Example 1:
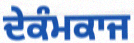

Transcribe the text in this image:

ਦੇਕੰਮਕਾਜ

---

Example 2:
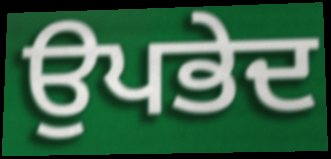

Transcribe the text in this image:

ਉਪਭੇਦ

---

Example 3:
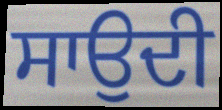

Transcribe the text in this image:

ਸਾਉਦੀ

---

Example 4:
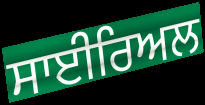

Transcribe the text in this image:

ਸਾਈਰਿਅਲ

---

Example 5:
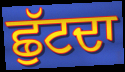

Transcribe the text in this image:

ਛੁੱਟਦਾ